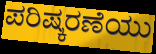
ಪರಿಷ್ಕರಣೆಯು